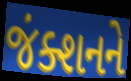
જંક્શનને